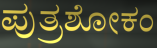
ಪುತ್ರಶೋಕಂ